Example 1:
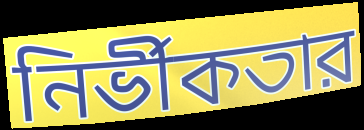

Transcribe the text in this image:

নির্ভীকতার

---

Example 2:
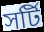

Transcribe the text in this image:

সর্টি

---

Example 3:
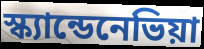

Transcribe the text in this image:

স্ক্যান্ডেনেভিয়া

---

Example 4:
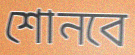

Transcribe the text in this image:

শোনবে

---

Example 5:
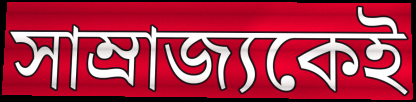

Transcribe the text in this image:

সাম্রাজ্যকেই